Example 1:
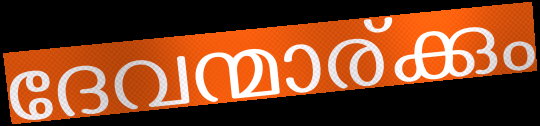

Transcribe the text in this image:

ദേവന്മാര്ക്കും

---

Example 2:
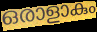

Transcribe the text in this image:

ഒരാളാകും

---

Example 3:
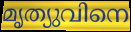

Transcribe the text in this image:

മൃത്യുവിനെ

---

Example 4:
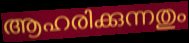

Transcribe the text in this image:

ആഹരിക്കുന്നതും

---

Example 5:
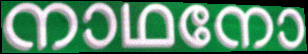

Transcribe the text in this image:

നാഥനോ